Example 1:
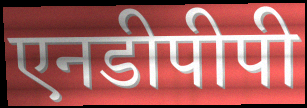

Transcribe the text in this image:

एनडीपीपी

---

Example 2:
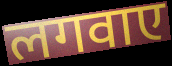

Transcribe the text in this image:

लगवाए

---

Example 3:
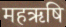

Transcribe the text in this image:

महऋषि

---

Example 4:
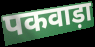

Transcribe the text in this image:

पकवाड़ा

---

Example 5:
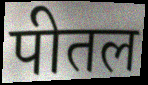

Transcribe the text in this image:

पीतल